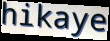
hikaye